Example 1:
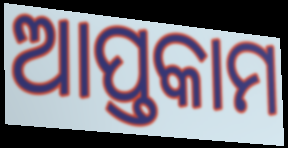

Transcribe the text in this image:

ଆପ୍ତକାମ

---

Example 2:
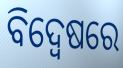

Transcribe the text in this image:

ବିଦ୍ଵେଷରେ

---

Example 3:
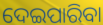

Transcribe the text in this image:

ଦେଇପାରିବା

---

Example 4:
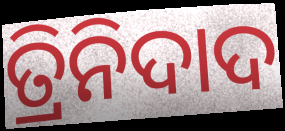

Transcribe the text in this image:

ତ୍ରିନିଦାଦ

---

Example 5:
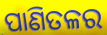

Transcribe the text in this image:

ପାଣିତଳର